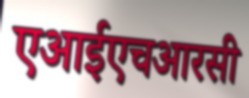
एआईएचआरसी